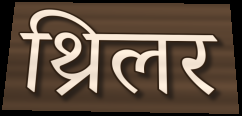
थ्रिलर